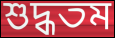
শুদ্ধতম